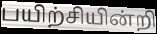
பயிற்சியின்றி